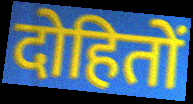
दोहितों